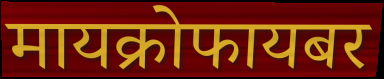
मायक्रोफायबर